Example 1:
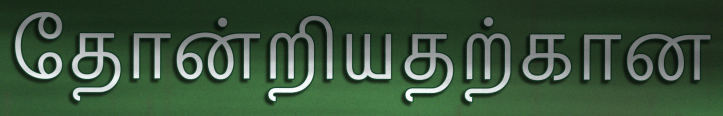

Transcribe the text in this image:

தோன்றியதற்கான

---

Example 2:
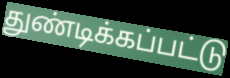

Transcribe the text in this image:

துண்டிக்கப்பட்டு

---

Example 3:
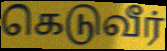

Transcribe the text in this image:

கெடுவீர்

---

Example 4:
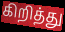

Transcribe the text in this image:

கிறித்து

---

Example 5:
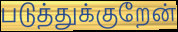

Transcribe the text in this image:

படுத்துக்குறேன்